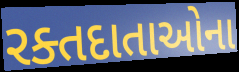
રક્તદાતાઓના